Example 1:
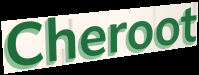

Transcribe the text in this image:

Cheroot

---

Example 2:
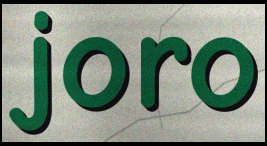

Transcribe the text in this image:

joro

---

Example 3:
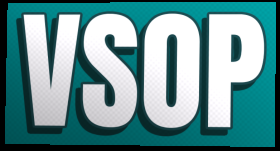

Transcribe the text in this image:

VSOP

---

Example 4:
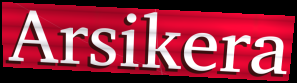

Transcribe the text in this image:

Arsikera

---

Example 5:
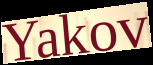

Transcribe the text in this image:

Yakov